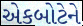
એકબોટેને